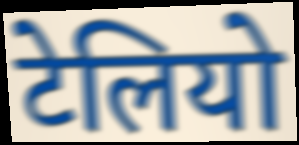
टेलियो